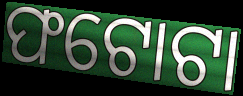
ଫଟୋଟା